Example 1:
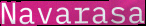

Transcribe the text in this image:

Navarasa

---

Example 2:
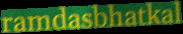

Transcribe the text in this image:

ramdasbhatkal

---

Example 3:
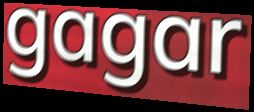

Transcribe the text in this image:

gagar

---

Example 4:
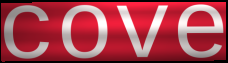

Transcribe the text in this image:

cove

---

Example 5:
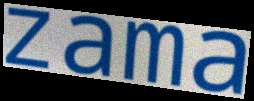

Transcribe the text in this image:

zama